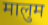
मालुम